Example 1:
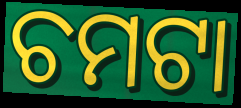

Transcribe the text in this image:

ଚମଟା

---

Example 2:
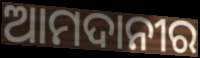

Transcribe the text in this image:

ଆମଦାନୀର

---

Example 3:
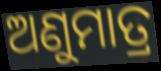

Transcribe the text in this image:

ଅଣୁମାତ୍ର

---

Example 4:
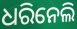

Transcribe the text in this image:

ଧରିନେଲି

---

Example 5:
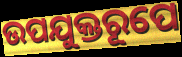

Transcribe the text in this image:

ଉପଯୁକ୍ତରୂପେ